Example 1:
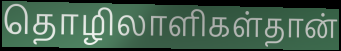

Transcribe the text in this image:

தொழிலாளிகள்தான்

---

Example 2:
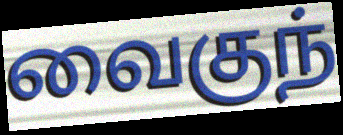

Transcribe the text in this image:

வைகுந்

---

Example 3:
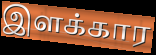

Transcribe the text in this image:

இளக்கார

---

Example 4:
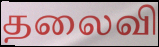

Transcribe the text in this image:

தலைவி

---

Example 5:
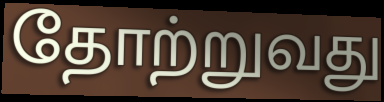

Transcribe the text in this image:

தோற்றுவது